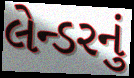
લેન્ડરનું